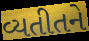
વ્યતીતને